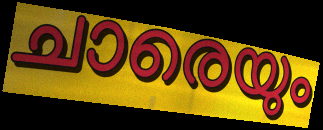
ചാരെയും